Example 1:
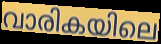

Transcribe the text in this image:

വാരികയിലെ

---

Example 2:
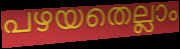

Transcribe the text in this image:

പഴയതെല്ലാം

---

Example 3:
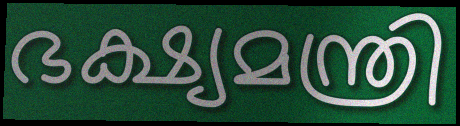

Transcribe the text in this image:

ഭക്ഷ്യമന്ത്രി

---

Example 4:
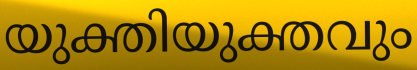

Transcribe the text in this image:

യുക്തിയുക്തവും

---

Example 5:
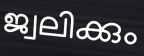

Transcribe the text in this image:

ജ്വലിക്കും